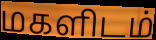
மகளிடம்